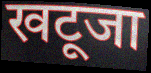
खटूजा